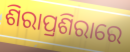
ଶିରାପ୍ରଶିରାରେ